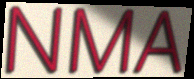
NMA